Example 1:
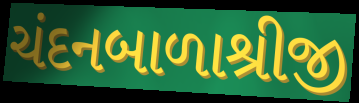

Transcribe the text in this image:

ચંદનબાળાશ્રીજી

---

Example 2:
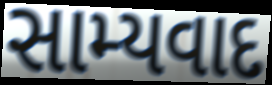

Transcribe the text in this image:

સામ્યવાદ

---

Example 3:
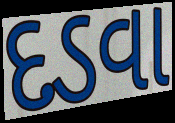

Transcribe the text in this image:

દડવા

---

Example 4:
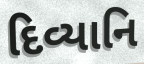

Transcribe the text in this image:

દિવ્યાનિ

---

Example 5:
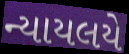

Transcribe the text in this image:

ન્યાયલયે